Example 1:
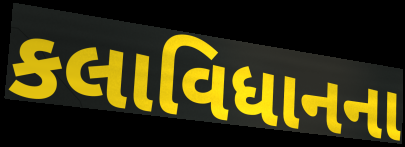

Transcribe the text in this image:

કલાવિધાનના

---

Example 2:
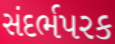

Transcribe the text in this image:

સંદર્ભપરક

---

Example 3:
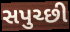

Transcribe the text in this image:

સપુચ્છી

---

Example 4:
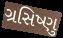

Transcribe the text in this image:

ગ્રસિષ્ણુ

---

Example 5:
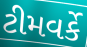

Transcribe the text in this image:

ટીમવર્કે